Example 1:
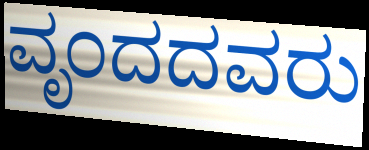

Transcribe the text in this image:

ವೃಂದದವರು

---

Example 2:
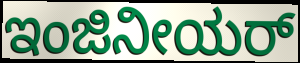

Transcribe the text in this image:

ಇಂಜಿನೀಯರ್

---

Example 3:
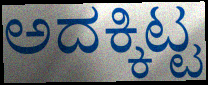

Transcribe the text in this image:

ಅದಕ್ಕಿಟ್ಟ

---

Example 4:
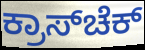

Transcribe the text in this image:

ಕ್ರಾಸ್‌ಚೆಕ್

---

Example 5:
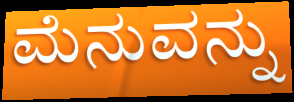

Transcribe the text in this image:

ಮೆನುವನ್ನು